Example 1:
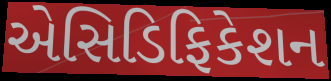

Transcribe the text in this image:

એસિડિફિકેશન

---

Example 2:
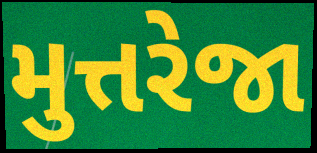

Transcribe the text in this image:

મુત્તરેજા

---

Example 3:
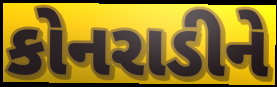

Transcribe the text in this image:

કોનરાડીને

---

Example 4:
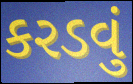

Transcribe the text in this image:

કરડવું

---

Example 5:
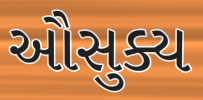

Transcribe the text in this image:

ઔસુક્ય